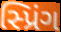
સ્પ્રિંગ